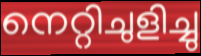
നെറ്റിചുളിച്ചു